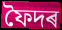
ফৈদৰ